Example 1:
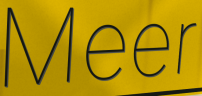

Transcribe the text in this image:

Meer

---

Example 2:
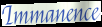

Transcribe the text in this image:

Immanence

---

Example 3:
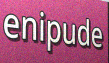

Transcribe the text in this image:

enipude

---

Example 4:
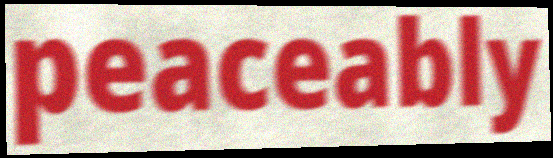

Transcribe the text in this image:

peaceably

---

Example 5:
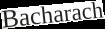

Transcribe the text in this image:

Bacharach